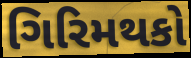
ગિરિમથકો